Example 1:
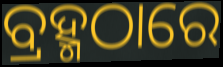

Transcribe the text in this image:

ବ୍ରହ୍ମଠାରେ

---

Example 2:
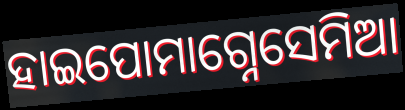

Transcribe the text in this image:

ହାଇପୋମାଗ୍ନେସେମିଆ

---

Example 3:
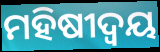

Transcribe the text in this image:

ମହିଷୀଦ୍ୱୟ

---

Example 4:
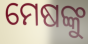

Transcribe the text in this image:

ମେଷଙ୍କୁ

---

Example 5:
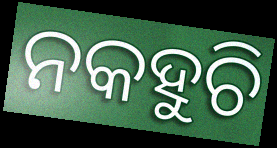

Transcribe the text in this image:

ନକହୁଚି